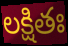
లక్షితః